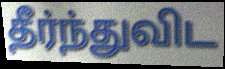
தீர்ந்துவிட